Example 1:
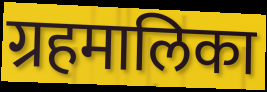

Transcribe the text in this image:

ग्रहमालिका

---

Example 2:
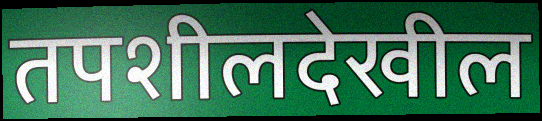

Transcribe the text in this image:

तपशीलदेखील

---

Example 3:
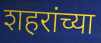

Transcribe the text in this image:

शहरांच्या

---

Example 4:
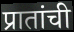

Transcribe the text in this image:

प्रातांची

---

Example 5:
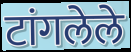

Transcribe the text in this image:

टांगलेले